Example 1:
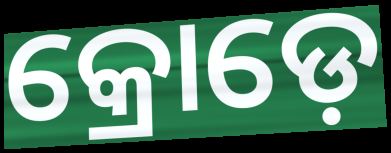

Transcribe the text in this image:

କ୍ରୋଡ଼େ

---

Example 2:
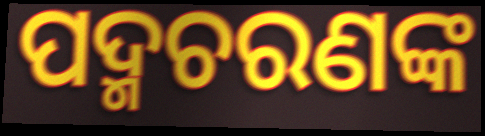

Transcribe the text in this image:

ପଦ୍ମଚରଣଙ୍କ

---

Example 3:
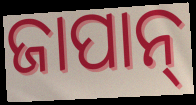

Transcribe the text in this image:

ଜାପାନ୍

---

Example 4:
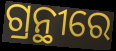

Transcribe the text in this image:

ଗ୍ରନ୍ଥୀରେ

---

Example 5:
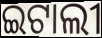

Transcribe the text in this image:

ଇଟାଲୀ